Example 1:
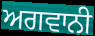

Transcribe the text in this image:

ਅਗਵਾਨੀ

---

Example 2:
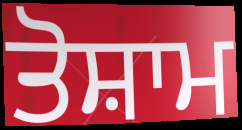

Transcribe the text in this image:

ਤੋਸ਼ਾਮ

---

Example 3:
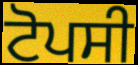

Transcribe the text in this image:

ਟੋਪਸੀ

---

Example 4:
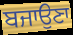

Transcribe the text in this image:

ਬਜਾਉਣਾ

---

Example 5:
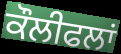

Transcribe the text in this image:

ਕੌਲੀਫਲਾਂ